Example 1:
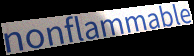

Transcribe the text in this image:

nonflammable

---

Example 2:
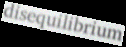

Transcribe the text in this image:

disequilibrium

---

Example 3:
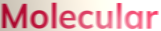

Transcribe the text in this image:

Molecular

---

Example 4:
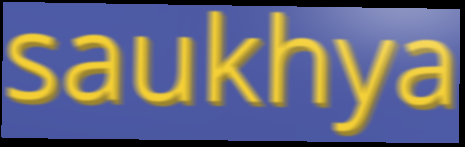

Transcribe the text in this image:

saukhya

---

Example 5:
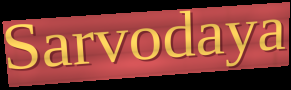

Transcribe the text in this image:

Sarvodaya